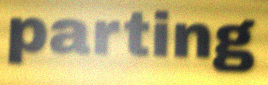
parting